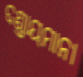
ଦଣ୍ଡାୟମାନା